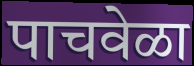
पाचवेळा